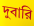
দুবারি